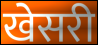
खेसरी